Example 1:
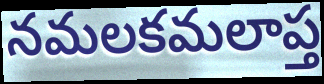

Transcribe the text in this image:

నమలకమలాప్త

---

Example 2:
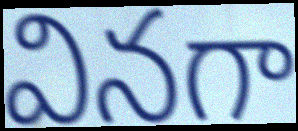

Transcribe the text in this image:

వినగా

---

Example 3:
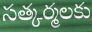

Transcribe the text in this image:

సత్కర్మలకు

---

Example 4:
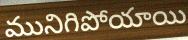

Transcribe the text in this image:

మునిగిపోయాయి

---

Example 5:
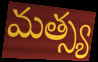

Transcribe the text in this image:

మత్స్య